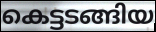
കെട്ടടങ്ങിയ